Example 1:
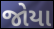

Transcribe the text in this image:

જોયા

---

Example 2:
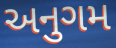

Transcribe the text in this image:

અનુગમ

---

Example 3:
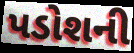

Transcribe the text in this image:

પડોશની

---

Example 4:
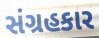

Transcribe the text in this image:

સંગ્રહકાર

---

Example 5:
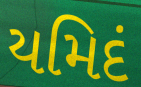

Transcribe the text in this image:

યમિદં